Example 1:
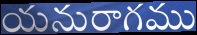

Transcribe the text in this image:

యనురాగము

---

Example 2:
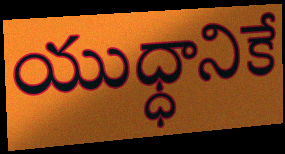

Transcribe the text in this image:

యుధ్ధానికే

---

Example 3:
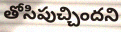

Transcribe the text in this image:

తోసిపుచ్చిందని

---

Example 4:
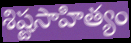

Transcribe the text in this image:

శిష్టసాహిత్యం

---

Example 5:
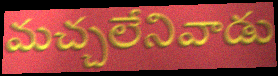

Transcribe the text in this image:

మచ్చలేనివాడు